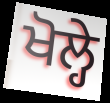
ਖੋਲ੍ਹੇ